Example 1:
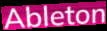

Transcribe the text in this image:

Ableton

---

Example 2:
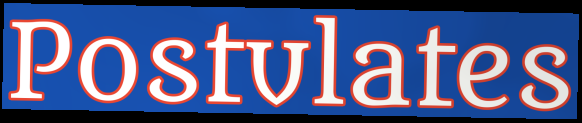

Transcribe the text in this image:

Postulates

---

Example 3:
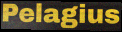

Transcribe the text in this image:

Pelagius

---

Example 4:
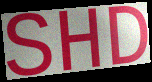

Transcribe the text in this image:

SHD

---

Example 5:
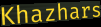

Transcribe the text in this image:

Khazhars